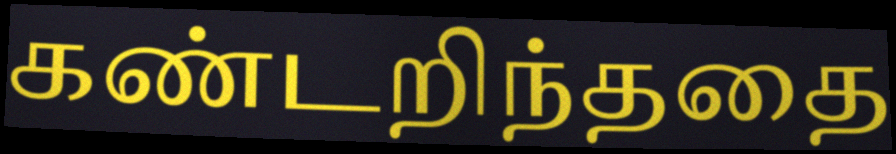
கண்டறிந்ததை